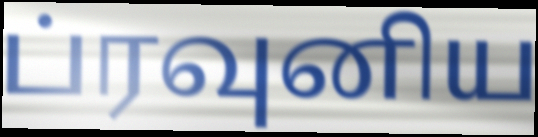
ப்ரவுனிய